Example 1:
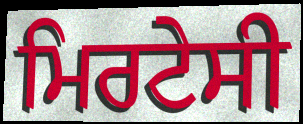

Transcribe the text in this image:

ਮਿਰਟੇਸੀ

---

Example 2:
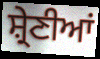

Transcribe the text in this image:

ਸ਼੍ਰੇਣੀਆਂ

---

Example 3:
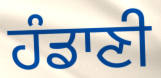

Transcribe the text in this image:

ਹੰਡਾਣੀ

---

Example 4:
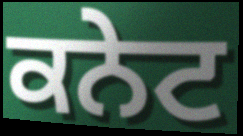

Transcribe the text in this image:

ਕਨੇਟ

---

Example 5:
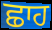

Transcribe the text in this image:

ਛਾਹ